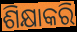
ଶିକ୍ଷାକରି